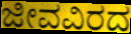
ಜೀವವಿರದ